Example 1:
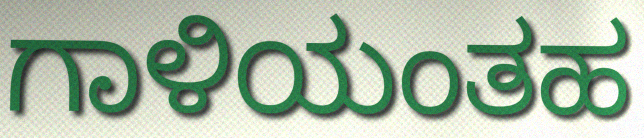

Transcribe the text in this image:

ಗಾಳಿಯಂತಹ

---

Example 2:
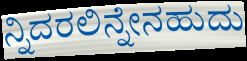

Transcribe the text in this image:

ನ್ನಿದರಲಿನ್ನೇನಹುದು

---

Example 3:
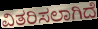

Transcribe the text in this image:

ವಿತರಿಸಲಾಗಿದೆ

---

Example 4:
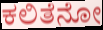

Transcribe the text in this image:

ಕಲಿತೆನೋ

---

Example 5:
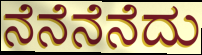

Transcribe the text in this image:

ನೆನೆನೆನೆದು